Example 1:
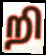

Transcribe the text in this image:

றி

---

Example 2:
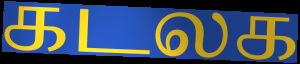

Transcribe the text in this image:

கடலக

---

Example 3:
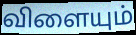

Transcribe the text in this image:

விளையும்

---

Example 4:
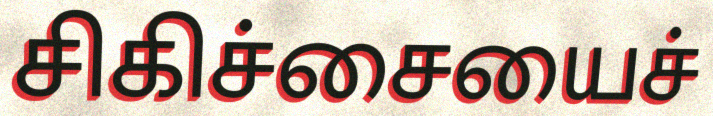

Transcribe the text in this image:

சிகிச்சையைச்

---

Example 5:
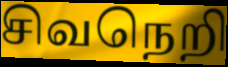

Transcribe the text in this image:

சிவநெறி